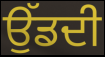
ਉੱਡਦੀ